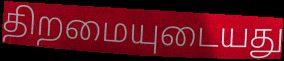
திறமையுடையது